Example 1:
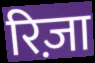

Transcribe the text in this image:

रिज़ा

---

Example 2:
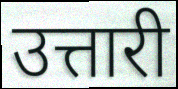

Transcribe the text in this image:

उत्तारी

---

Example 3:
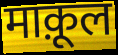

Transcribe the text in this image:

माक़ूल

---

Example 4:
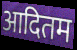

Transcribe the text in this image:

आदितम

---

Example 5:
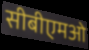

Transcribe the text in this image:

सीबीएमओ